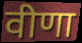
वीणा